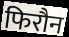
फिरौन